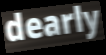
dearly